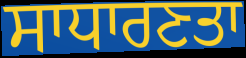
ਸਾਧਾਰਣਤਾ